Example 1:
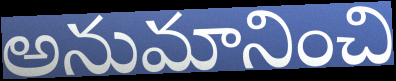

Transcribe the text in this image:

అనుమానించి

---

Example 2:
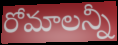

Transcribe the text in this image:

రోమాలన్నీ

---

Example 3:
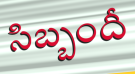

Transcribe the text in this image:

సిబ్బందీ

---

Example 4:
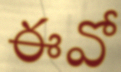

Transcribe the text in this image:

ఈవో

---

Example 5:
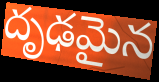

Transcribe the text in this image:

దృఢమైన